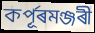
কৰ্পূৰমঞ্জৰী